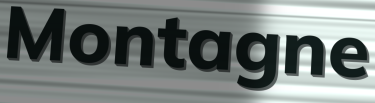
Montagne